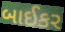
બાઈકર